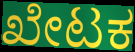
ಖೇಟಕ